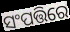
ସଂପତ୍ତିରେ